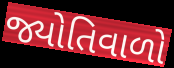
જ્યોતિવાળો